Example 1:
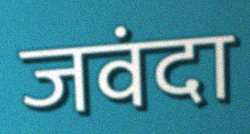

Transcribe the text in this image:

जवंदा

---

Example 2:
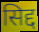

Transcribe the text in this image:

सिद्द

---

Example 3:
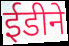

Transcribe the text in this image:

ईडीने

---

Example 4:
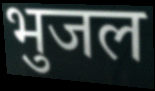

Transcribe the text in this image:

भुजल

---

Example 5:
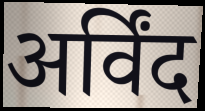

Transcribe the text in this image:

अर्विंद